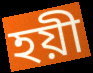
হয়ী